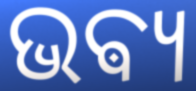
ଭଵ୍ୟ